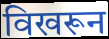
विखरून